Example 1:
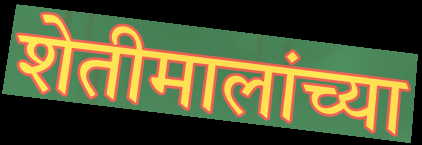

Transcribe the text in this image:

शेतीमालांच्या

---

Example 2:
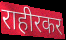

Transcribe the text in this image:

राहीरकर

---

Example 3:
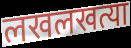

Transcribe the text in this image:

लखलखत्या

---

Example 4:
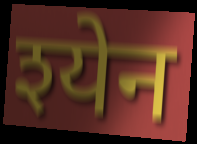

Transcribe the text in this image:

श्येन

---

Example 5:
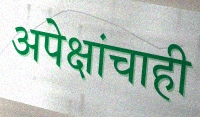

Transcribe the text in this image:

अपेक्षांचाही